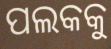
ପଲକକୁ